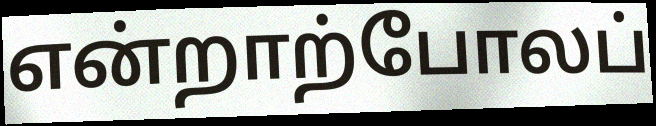
என்றாற்போலப்